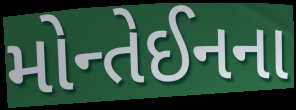
મોન્તેઈનના